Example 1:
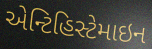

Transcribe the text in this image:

એન્ટિહિસ્ટેમાઇન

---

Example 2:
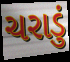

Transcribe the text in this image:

ચરાડું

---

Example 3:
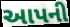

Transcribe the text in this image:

આપની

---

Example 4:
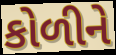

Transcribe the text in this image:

કોળીને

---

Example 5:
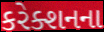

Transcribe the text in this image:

કરેક્શનના